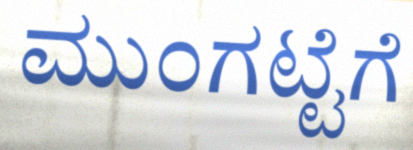
ಮುಂಗಟ್ಟೆಗೆ